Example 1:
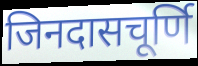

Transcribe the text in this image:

जिनदासचूर्णि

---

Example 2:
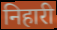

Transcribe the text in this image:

निहारी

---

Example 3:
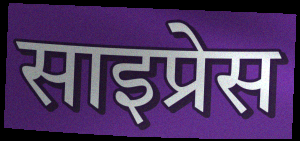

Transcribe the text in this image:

साइप्रेस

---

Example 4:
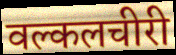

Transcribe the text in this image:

वल्कलचीरी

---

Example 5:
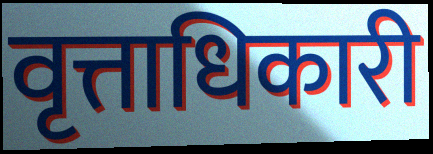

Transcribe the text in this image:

वृत्ताधिकारी